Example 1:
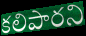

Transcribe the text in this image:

కలిపారని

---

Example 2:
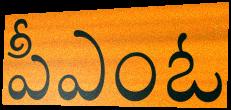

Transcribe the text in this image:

పీఎంఓ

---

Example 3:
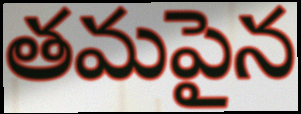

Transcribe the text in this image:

తమపైన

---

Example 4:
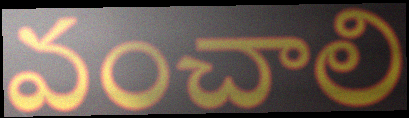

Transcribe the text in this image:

వంచాలి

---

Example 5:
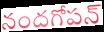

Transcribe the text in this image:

నందగోపన్